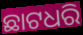
ଛାଟଧରି